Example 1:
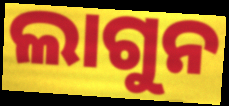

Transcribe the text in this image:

ଲାଗୁନ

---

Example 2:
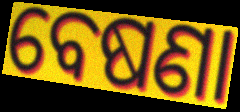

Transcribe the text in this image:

ବେଷଣା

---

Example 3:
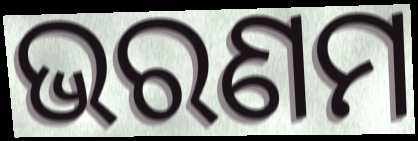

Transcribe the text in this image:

ଭରଣମ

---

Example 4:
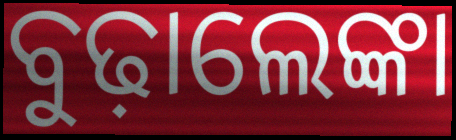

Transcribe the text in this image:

ବୁଢ଼ାଲେଙ୍କା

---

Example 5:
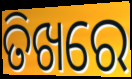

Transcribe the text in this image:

ତିଖରେ